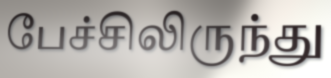
பேச்சிலிருந்து